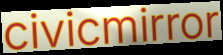
civicmirror